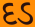
દડ